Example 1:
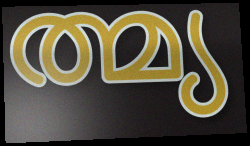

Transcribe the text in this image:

ത്മ്യ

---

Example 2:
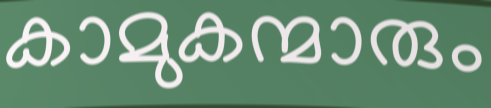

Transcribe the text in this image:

കാമുകന്മാരും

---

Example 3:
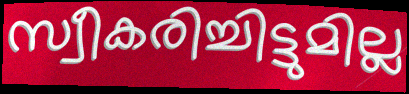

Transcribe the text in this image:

സ്വീകരിച്ചിട്ടുമില്ല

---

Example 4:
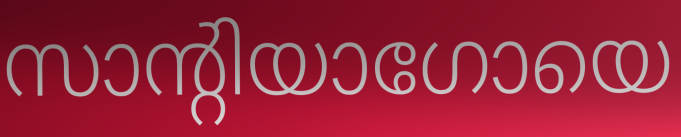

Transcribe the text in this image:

സാന്റിയാഗോയെ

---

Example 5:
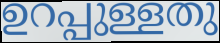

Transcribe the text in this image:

ഉറപ്പുള്ളതു